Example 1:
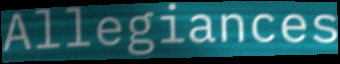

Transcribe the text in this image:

Allegiances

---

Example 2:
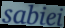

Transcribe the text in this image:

sabiei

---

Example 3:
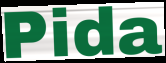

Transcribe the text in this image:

Pida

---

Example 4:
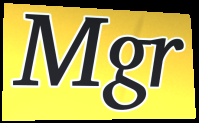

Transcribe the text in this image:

Mgr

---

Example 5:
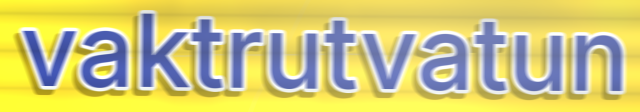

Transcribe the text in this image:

vaktrutvatun